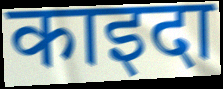
काइदा